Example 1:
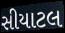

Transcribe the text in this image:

સીયાટલ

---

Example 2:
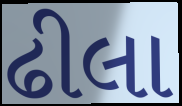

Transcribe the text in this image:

ઢીલા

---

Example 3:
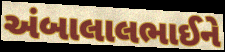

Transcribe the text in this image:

અંબાલાલભાઈને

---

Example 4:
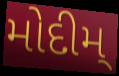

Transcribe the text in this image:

મોદીમ્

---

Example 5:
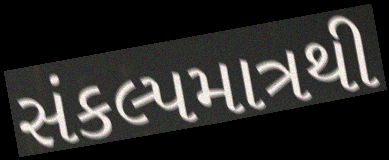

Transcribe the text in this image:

સંકલ્પમાત્રથી